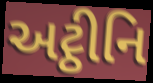
અટ્ઠીનિ